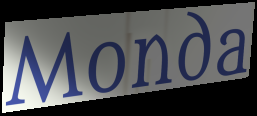
Monda